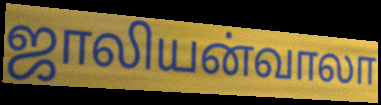
ஜாலியன்வாலா